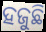
ହଜୁଛି